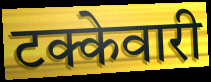
टक्केवारी